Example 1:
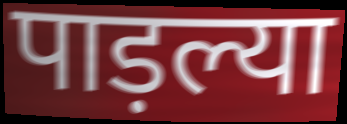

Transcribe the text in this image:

पाड़ल्या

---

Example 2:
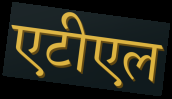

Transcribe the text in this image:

एटीएल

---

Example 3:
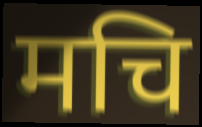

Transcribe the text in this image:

मचि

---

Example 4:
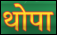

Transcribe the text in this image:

थोपा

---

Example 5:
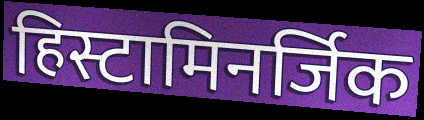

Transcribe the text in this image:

हिस्टामिनर्जिक